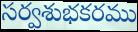
సర్వశుభకరము